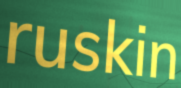
ruskin